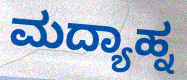
ಮದ್ಯಾಹ್ನ